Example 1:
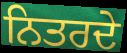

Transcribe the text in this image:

ਨਿਤਰਦੇ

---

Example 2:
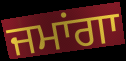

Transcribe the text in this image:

ਜਮਾਂਗਾ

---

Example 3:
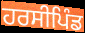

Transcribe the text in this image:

ਹਰਸੀਪਿੰਡ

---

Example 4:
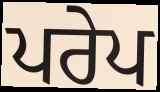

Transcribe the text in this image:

ਪਰੇਪ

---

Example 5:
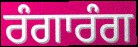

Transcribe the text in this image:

ਰੰਗਾਰੰਗ